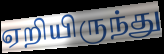
ஏறியிருந்து